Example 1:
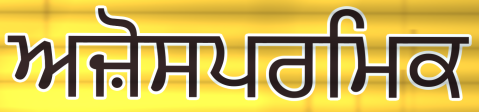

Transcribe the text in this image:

ਅਜ਼ੋਸਪਰਮਿਕ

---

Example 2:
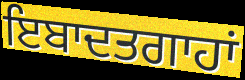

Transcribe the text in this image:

ਇਬਾਦਤਗਾਹਾਂ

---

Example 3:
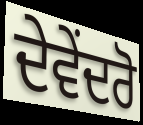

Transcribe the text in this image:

ਦੇਵੇਂਦਰੋ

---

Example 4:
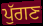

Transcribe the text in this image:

ਪੁੱਗਣ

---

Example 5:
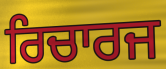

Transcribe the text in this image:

ਰਿਚਾਰਜ